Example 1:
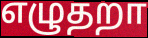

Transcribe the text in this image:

எழுதறா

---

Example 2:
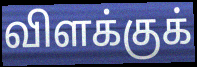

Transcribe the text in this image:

விளக்குக்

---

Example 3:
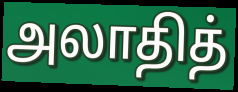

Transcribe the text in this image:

அலாதித்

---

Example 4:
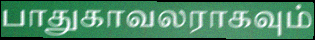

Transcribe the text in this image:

பாதுகாவலராகவும்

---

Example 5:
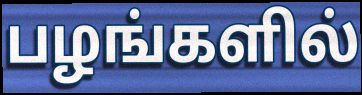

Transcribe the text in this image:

பழங்களில்